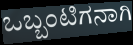
ಒಬ್ಬಂಟಿಗನಾಗಿ